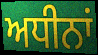
ਅਧੀਨਾਂ